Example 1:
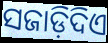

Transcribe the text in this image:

ସଜାଡ଼ିଦିଏ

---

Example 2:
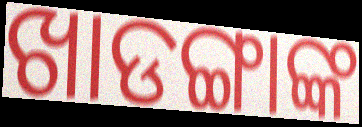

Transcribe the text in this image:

ଖାଡଙ୍ଗାଙ୍କ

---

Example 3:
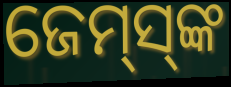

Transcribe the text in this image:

ଜେମ୍‌ସ୍‌ଙ୍କ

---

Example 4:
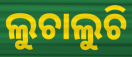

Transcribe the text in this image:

ଲୁଚାଲୁଚି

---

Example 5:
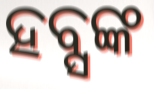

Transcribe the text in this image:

ହବ୍ସଙ୍କ